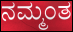
ನಮ್ಮಂತ